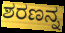
ಶರಣನ್ನ